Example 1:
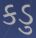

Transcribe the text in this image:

કડુ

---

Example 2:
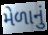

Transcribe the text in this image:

મેળાનું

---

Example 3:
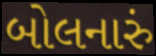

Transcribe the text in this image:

બોલનારું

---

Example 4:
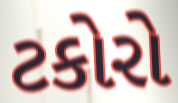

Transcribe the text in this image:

ટકોરો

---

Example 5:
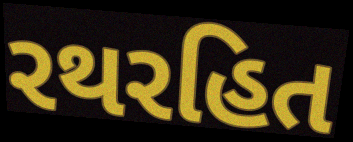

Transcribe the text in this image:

રથરહિત